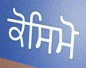
ਕੋਸਿਮੋ